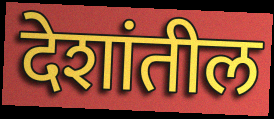
देशांतील